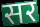
सर